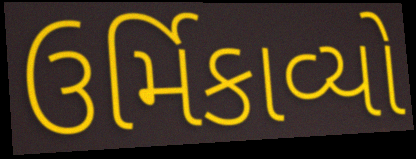
ઉર્મિકાવ્યો